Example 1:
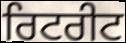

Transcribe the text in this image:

ਰਿਟਰੀਟ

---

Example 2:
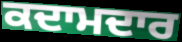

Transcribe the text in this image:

ਕਦਾਮਦਾਰ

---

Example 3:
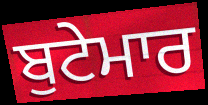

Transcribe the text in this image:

ਬੁਟੇਮਾਰ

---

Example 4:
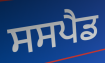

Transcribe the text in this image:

ਸਸਪੈਡ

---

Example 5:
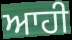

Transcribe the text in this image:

ਆਹੀ